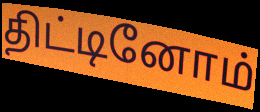
திட்டினோம்